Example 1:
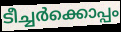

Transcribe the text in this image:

ടീച്ചർക്കൊപ്പം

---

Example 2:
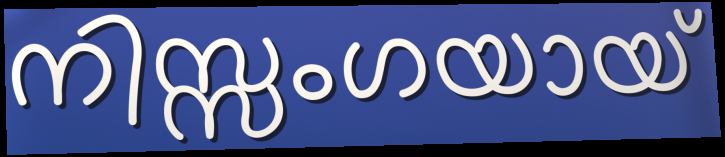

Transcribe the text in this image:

നിസ്സംഗയായ്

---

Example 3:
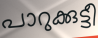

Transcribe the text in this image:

പാറുക്കുട്ടീ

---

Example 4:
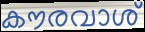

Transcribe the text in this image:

കൗരവാശ്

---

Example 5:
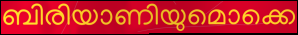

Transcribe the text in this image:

ബിരിയാണിയുമൊക്കെ